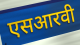
एसआरवी